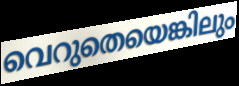
വെറുതെയെങ്കിലും